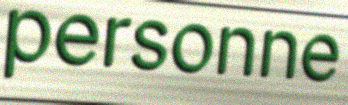
personne